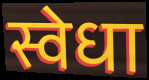
स्वेधा